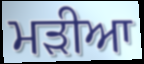
ਮੜੀਆ